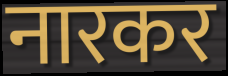
नारकर